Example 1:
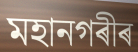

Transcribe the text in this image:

মহানগৰীৰ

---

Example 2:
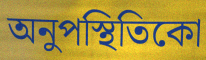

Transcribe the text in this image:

অনুপস্থিতিকো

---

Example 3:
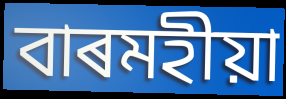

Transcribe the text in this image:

বাৰমহীয়া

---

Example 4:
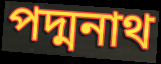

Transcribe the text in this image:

পদ্মনাথ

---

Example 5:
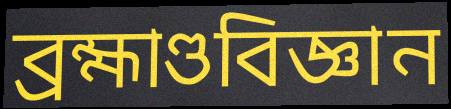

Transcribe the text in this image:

ব্ৰহ্মাণ্ডবিজ্ঞান